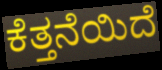
ಕೆತ್ತನೆಯಿದೆ